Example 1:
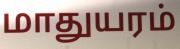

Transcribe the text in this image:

மாதுயரம்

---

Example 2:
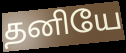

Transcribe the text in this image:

தனியே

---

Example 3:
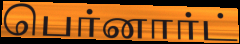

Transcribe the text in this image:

பெர்னார்ட்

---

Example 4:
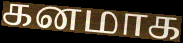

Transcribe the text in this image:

கனமாக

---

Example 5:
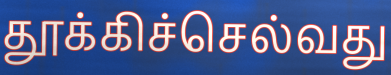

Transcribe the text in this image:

தூக்கிச்செல்வது